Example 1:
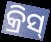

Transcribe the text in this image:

କ୍ରିସ୍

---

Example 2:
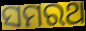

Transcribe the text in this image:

ସମରଥ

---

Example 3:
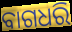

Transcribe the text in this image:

ବାଗଧରି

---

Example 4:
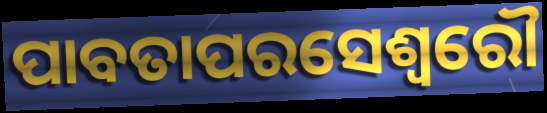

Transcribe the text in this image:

ପାବତାପରସେଶ୍ୱରୌ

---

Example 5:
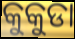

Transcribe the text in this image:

କୁକୁଡା